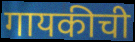
गायकीची